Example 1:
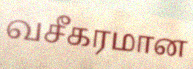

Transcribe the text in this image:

வசீகரமான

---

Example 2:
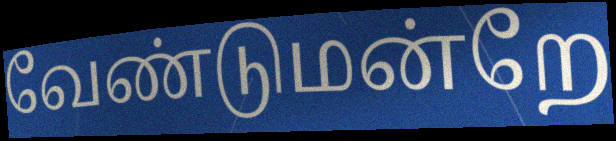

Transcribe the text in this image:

வேண்டுமன்றே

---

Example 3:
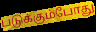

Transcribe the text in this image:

படுக்கும்போது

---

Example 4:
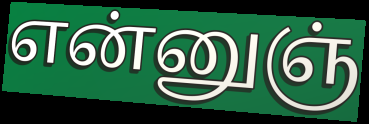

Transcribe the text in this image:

என்னுஞ்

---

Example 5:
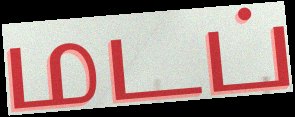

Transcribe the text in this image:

மடப்